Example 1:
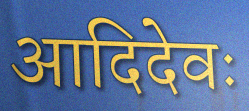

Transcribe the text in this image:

आदिदेवः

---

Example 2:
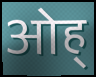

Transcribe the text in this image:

ओह्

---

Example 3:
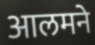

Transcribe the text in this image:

आलमने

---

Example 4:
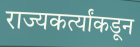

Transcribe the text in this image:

राज्यकर्त्यांकडून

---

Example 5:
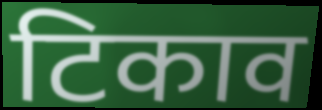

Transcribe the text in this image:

टिकाव